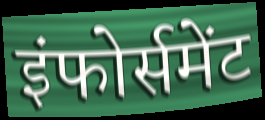
इंफोर्समेंट